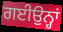
ਗਈਉਨ੍ਹਾਂ